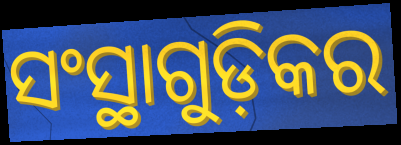
ସଂସ୍ଥାଗୁଡ଼ିକର